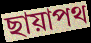
ছায়াপথ